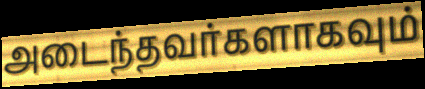
அடைந்தவர்களாகவும்